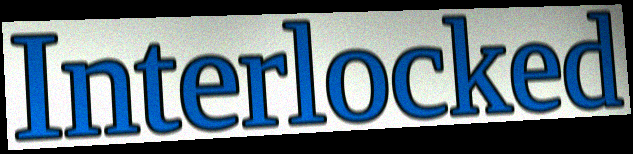
Interlocked